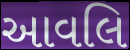
આવલિ